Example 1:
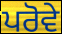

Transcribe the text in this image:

ਪਰੋਵੇ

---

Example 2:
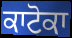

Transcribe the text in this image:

ਕਾਟੋਕਾ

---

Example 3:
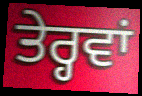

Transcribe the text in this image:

ਤੇਰ੍ਹਵਾਂ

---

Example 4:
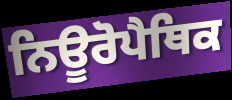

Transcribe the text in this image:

ਨਿਊਰੋਪੈਥਿਕ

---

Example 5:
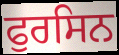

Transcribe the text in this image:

ਫੁਰਸਿਨ